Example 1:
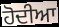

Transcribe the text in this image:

ਹੋਦੀਆ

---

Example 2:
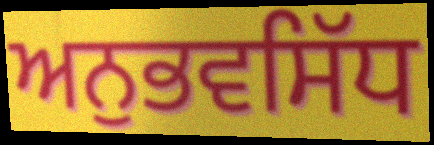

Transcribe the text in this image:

ਅਨੁਭਵਸਿੱਧ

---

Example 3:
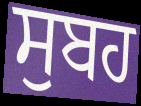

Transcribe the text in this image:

ਸੁਬਹ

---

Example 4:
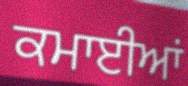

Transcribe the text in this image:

ਕਮਾਈਆਂ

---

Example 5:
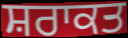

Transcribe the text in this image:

ਸ਼ਰਾਕਤ